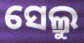
ସେଲ୍ରୁ